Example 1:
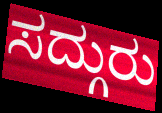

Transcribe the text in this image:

ಸದ್ಗುರು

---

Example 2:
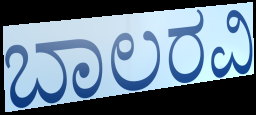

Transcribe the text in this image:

ಬಾಲರವಿ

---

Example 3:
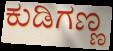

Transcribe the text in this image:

ಕುಡಿಗಣ್ಣ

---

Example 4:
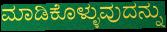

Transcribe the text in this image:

ಮಾಡಿಕೊಳ್ಳುವುದನ್ನು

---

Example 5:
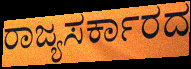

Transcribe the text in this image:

ರಾಜ್ಯಸರ್ಕಾರದ